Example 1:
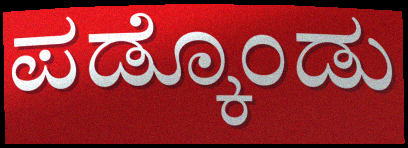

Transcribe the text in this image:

ಪಡ್ಕೊಂಡು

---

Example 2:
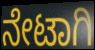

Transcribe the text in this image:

ನೇಟಾಗಿ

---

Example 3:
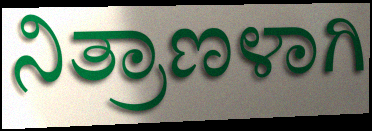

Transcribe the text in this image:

ನಿತ್ರಾಣಳಾಗಿ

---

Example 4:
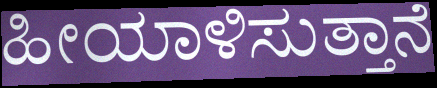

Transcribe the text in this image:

ಹೀಯಾಳಿಸುತ್ತಾನೆ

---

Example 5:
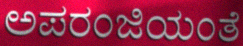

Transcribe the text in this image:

ಅಪರಂಜಿಯಂತೆ